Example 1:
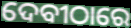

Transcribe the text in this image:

ଦେବୀଠାରେ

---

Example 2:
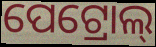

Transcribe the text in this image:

ପେଟ୍ରୋଲ୍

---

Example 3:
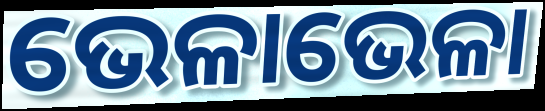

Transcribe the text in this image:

ଭେଳାଭେଳା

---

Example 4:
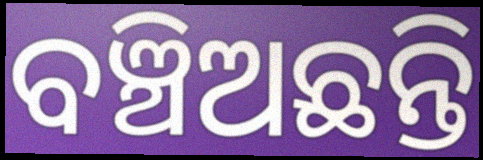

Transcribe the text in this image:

ବଞ୍ଚିଅଛନ୍ତି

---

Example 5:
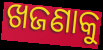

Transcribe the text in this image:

ଖଜଣାକୁ